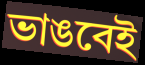
ভাঙবেই